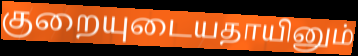
குறையுடையதாயினும்